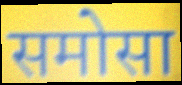
समोसा